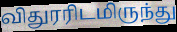
விதுரரிடமிருந்து